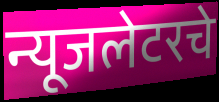
न्यूजलेटरचे